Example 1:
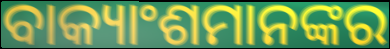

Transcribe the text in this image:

ବାକ୍ୟାଂଶମାନଙ୍କର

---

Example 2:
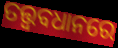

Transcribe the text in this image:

ତତ୍ତ୍ଵବଧାନରେ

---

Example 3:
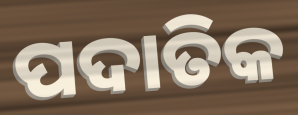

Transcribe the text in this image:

ପଦାତିକ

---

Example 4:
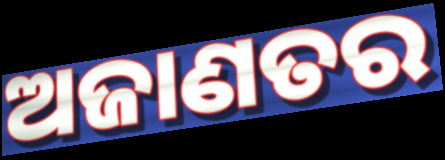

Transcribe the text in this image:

ଅଜାଣତର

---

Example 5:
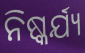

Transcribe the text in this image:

ନିଷ୍କର୍ଯ୍ୟ